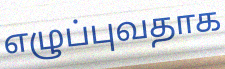
எழுப்புவதாக